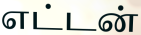
எட்டன்